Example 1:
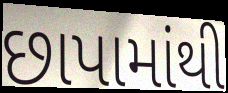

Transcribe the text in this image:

છાપામાંથી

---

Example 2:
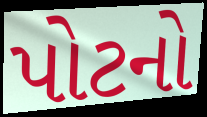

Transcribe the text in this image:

પોટનો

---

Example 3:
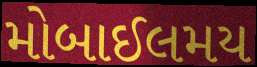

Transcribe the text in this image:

મોબાઈલમય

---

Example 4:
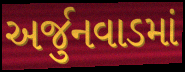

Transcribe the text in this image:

અર્જુનવાડમાં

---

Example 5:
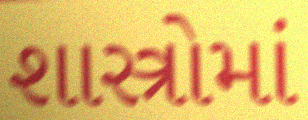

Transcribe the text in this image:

શાસ્ત્રોમાં